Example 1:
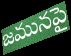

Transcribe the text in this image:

జమునపై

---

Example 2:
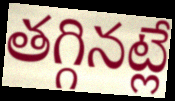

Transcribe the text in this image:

తగ్గినట్లే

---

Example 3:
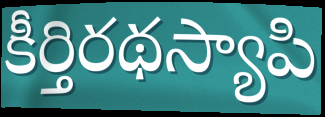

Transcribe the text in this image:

కీర్తిరథస్యాపి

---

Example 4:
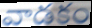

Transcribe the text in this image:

వాడకం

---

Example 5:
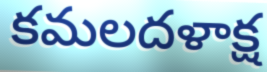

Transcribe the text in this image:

కమలదళాక్ష